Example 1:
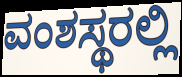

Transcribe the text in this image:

ವಂಶಸ್ಥರಲ್ಲಿ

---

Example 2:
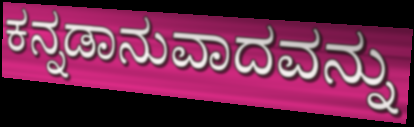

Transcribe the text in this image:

ಕನ್ನಡಾನುವಾದವನ್ನು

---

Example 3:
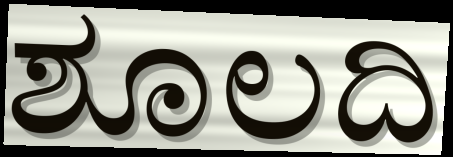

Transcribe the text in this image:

ಶೂಲದಿ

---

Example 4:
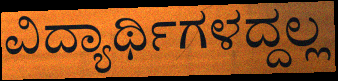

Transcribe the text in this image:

ವಿದ್ಯಾರ್ಥಿಗಳದ್ದಲ್ಲ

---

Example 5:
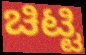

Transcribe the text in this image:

ಚಿಟ್ಟಿ